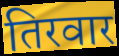
तिरवार